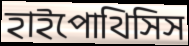
হাইপোথিসিস